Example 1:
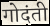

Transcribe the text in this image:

गोदंती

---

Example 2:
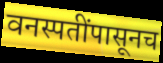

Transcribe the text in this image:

वनस्पतींपासूनच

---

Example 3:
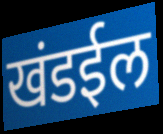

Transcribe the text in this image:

खंडईल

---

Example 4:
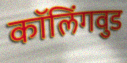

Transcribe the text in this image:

कॉलिंगवुड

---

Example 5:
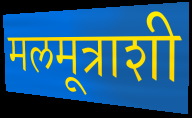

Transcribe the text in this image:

मलमूत्राशी